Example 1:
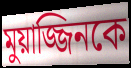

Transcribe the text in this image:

মুয়াজ্জিনকে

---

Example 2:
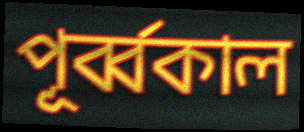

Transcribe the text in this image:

পূর্ব্বকাল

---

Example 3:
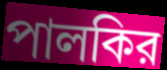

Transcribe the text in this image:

পালকির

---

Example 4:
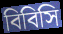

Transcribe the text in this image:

বিবিসি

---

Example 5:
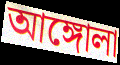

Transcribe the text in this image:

আঙ্গোলা